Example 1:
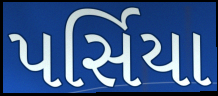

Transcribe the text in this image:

પર્સિયા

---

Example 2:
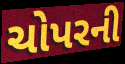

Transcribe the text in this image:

ચોપરની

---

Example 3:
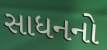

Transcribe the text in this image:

સાધનનો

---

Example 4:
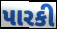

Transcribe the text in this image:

પારકી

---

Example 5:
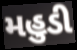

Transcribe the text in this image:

મહુડી